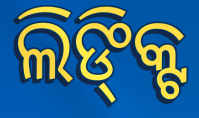
ଲିଙ୍କ୍ଟି